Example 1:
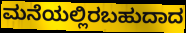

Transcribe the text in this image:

ಮನೆಯಲ್ಲಿರಬಹುದಾದ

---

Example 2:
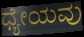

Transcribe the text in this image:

ಧ್ಯೇಯವು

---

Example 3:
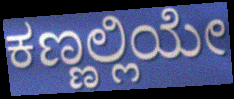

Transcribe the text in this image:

ಕಣ್ಣಲ್ಲಿಯೇ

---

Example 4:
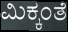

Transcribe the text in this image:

ಮಿಕ್ಕಂತೆ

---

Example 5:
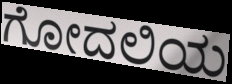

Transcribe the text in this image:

ಗೋದಲಿಯ